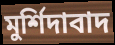
মুর্শিদাবাদ